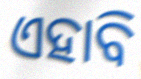
ଏହାବି